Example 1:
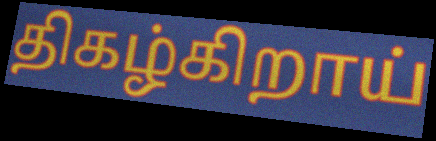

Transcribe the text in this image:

திகழ்கிறாய்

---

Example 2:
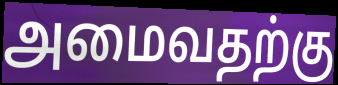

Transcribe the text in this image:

அமைவதற்கு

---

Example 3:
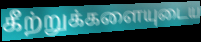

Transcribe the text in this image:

கீற்றுக்களையுடைய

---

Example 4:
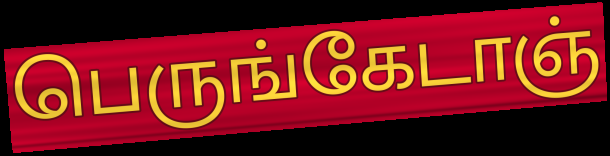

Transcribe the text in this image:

பெருங்கேடாஞ்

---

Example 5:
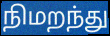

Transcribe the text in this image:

நிமறந்து